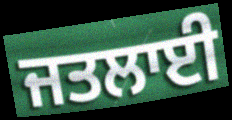
ਜਤਲਾਈ